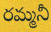
రమ్మనీ